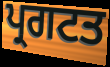
ਪ੍ਰਗਟਤ